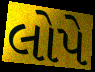
લોપે